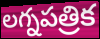
లగ్నపత్రిక